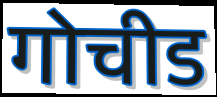
गोचीड